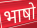
भाषो